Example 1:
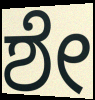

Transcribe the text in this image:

ಶೇ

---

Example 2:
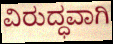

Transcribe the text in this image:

ವಿರುದ್ಧವಾಗಿ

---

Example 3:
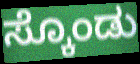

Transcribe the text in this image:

ಸ್ಕೊಂಡು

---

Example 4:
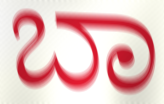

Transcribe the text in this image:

ಬಾ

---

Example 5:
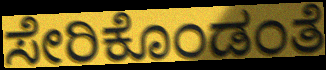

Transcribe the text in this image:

ಸೇರಿಕೊಂಡಂತೆ